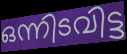
ഒന്നിടവിട്ട